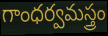
గాంధర్వమస్త్రం